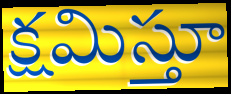
క్షమిస్తూ